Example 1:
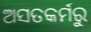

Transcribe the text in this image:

ଅସତକର୍ମରୁ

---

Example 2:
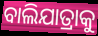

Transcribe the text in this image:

ବାଲିଯାତ୍ରାକୁ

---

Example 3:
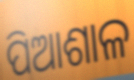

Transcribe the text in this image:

ପିଆଶାଳ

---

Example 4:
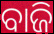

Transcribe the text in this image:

ବାଜି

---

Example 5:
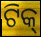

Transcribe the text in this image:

ଟିକ୍